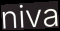
niva